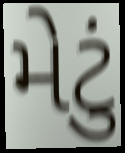
મેટું